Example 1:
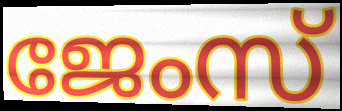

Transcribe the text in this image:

ജേംസ്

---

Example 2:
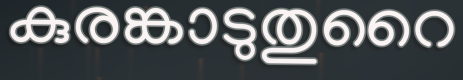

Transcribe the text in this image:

കുരങ്കാടുതുറൈ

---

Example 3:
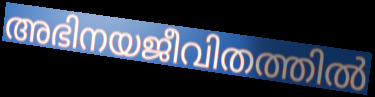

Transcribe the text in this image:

അഭിനയജീവിതത്തിൽ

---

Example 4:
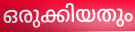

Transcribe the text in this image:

ഒരുക്കിയതും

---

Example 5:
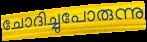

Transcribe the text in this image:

ചോദിച്ചുപോരുന്നു